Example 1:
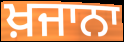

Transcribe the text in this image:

ਖ਼ਜਾਨਾ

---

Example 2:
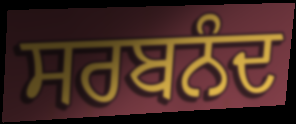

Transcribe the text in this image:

ਸਰਬਨੰਦ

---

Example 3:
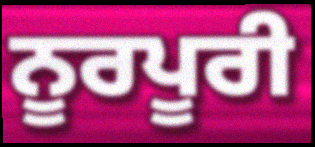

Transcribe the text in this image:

ਨੂਰਪੂਰੀ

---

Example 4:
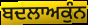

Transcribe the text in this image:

ਬਦਲਾਅਕੁੰਨ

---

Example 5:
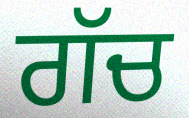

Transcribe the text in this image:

ਗੱਚ